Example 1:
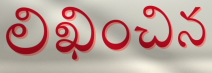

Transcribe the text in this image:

లిఖించిన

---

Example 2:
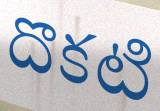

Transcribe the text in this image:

దొకటి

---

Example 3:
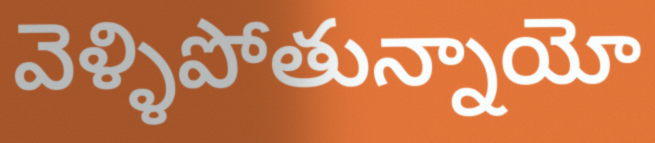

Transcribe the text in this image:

వెళ్ళిపోతున్నాయో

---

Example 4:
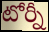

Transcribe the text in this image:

టోర్నీ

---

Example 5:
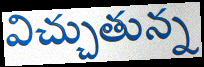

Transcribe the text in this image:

విచ్చుతున్న